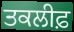
ਤਕਲੀਫ਼